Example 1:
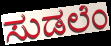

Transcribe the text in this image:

ಸುಡಲೆಂ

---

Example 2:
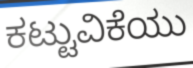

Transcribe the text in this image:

ಕಟ್ಟುವಿಕೆಯು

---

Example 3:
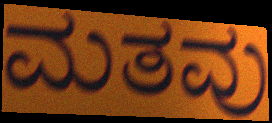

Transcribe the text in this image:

ಮತವು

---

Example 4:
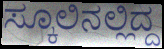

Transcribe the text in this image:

ಸ್ಕೂಲಿನಲ್ಲಿದ್ದ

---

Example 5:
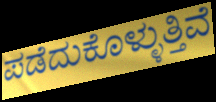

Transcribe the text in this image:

ಪಡೆದುಕೊಳ್ಳುತ್ತಿವೆ